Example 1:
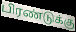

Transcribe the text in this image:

பிரண்டுக்கு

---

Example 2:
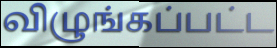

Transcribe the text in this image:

விழுங்கப்பட்ட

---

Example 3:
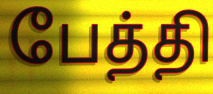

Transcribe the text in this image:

பேத்தி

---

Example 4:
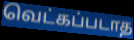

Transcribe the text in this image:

வெட்கப்படாத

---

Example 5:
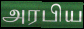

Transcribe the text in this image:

அரபிய